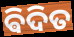
ଵିଦିତ